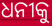
ଧନୀକୁ